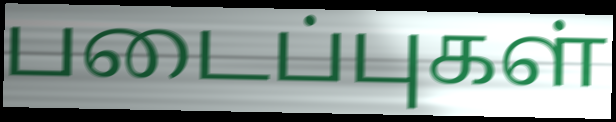
படைப்புகள்